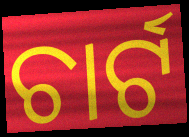
ଚାର୍ଟ